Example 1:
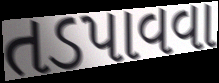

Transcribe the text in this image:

તડપાવવા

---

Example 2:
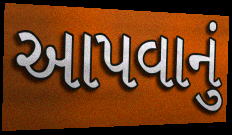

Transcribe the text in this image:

આપવાનું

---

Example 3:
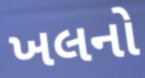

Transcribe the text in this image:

ખલનો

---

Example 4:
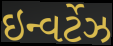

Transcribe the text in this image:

ઇન્વર્ટેઝ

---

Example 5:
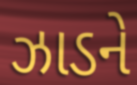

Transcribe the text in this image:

ઝાડને